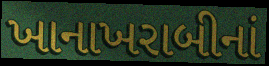
ખાનાખરાબીનાં